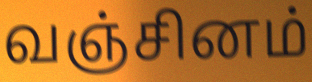
வஞ்சினம்